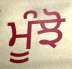
ਮੂੰਝੋ